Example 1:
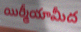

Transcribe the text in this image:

యిర్మీయామీద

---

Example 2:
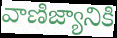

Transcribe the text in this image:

వాణిజ్యానికి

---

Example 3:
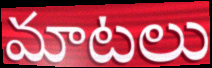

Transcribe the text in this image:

మాటలు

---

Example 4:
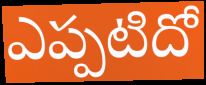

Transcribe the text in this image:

ఎప్పటిదో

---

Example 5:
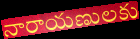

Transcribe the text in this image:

నారాయణులకు